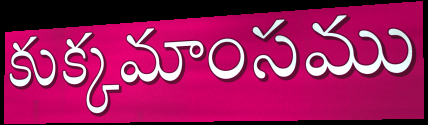
కుక్కమాంసము